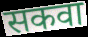
सकवा